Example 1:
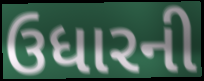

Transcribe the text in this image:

ઉધારની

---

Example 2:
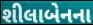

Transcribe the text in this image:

શીલાબેનના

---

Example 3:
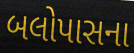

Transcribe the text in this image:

બલોપાસના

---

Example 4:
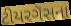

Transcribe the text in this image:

ટીયરગૅસના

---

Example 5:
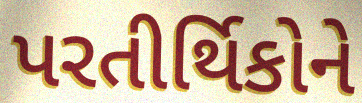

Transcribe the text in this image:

પરતીર્થિકોને